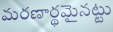
మరణార్థమైనట్టు